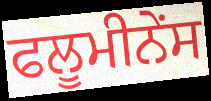
ਫਲੂਮੀਨੇਂਸ